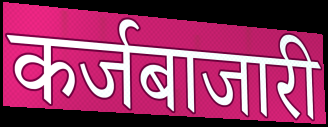
कर्जबाजारी